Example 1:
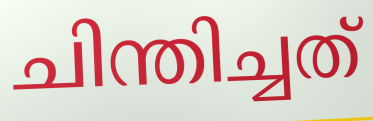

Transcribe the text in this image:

ചിന്തിച്ചത്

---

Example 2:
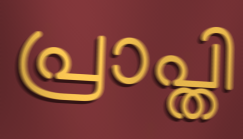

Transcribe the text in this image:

പ്രാപ്തി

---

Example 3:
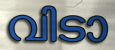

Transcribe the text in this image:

വിടാ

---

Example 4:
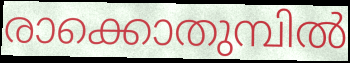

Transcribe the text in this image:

രാക്കൊതുമ്പിൽ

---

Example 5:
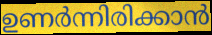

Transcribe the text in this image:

ഉണർന്നിരിക്കാൻ